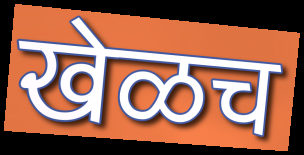
खेळच